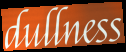
dullness